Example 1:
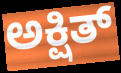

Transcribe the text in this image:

ಅಕ್ಷಿತ್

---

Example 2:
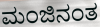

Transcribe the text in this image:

ಮಂಜಿನಂತ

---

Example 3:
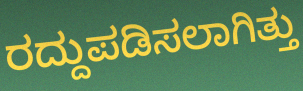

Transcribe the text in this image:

ರದ್ದುಪಡಿಸಲಾಗಿತ್ತು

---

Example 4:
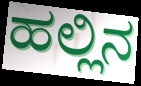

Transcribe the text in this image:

ಹಲ್ಲಿನ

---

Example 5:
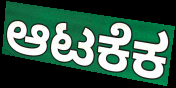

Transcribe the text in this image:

ಆಟಕೆಕ